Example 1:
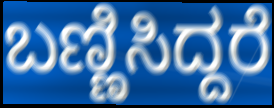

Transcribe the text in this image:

ಬಣ್ಣಿಸಿದ್ದರೆ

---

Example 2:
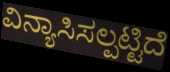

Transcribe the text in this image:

ವಿನ್ಯಾಸಿಸಲ್ಪಟ್ಟಿದೆ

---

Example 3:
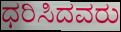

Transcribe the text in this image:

ಧರಿಸಿದವರು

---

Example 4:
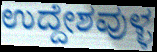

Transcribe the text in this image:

ಉದ್ದೇಶವುಳ್ಳ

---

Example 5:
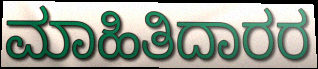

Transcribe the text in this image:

ಮಾಹಿತಿದಾರರ